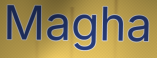
Magha